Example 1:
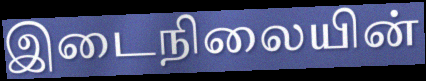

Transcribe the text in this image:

இடைநிலையின்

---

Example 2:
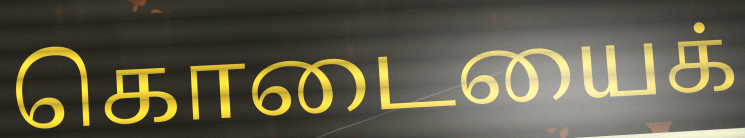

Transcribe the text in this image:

கொடையைக்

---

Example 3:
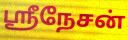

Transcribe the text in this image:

ஸ்ரீநேசன்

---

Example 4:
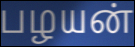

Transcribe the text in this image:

பழயன்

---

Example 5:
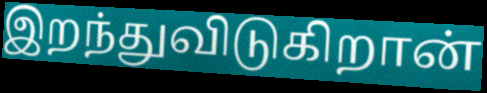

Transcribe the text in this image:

இறந்துவிடுகிறான்